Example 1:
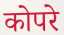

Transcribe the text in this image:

कोपरे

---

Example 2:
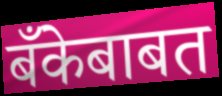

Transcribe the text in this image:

बँकेबाबत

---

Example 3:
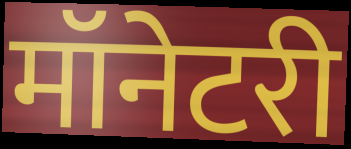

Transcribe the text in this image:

मॉनेटरी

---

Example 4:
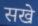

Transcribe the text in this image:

सखे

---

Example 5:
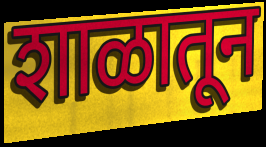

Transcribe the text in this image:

शाळातून